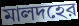
মালদহের